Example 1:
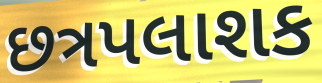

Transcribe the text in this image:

છત્રપલાશક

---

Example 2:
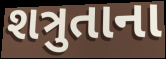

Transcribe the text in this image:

શત્રુતાના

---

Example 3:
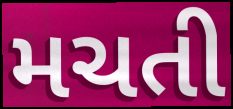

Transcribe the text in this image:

મચતી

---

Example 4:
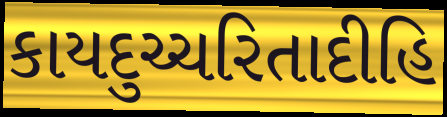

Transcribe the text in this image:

કાયદુચ્ચરિતાદીહિ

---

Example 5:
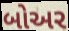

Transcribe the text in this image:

બોઅર